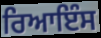
ਰਿਆਇੰਸ